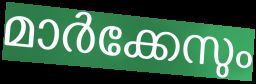
മാർക്കേസും